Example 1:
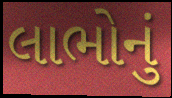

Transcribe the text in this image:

લાભોનું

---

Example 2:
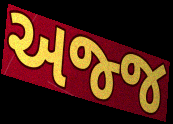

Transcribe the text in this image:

અજ્જ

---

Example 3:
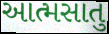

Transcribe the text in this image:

આત્મસાતુ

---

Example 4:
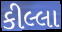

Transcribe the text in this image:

કીલ્લા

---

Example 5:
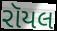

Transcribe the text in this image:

રૉયલ